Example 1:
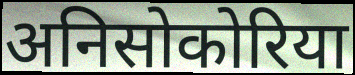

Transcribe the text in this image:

अनिसोकोरिया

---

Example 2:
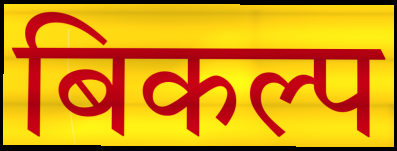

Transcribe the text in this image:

बिकल्प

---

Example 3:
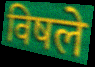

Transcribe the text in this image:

विषले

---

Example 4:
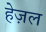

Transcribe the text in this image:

हेज़ल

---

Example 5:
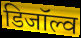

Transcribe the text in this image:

डिजॉल्व